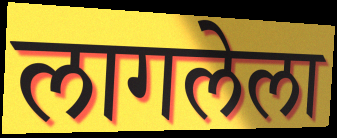
लागलेला